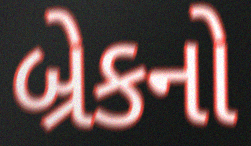
બ્રેકનો